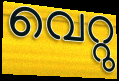
വെറ്റു